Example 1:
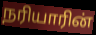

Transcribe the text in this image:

நரியாரின்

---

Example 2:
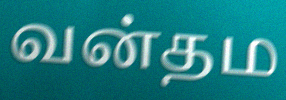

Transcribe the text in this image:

வன்தம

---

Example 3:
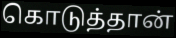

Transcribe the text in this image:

கொடுத்தான்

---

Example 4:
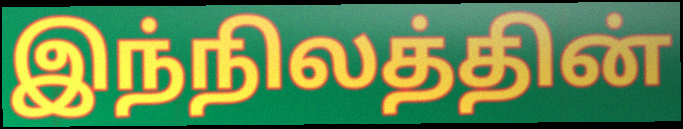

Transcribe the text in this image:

இந்நிலத்தின்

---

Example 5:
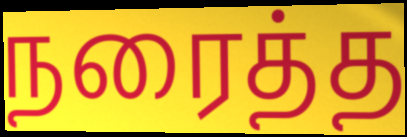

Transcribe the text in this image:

நரைத்த